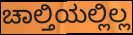
ಚಾಲ್ತಿಯಲ್ಲಿಲ್ಲ